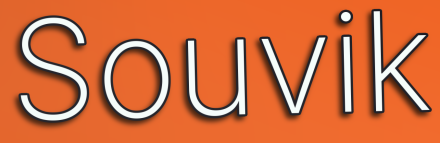
Souvik